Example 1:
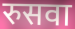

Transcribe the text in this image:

रुसवा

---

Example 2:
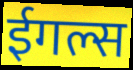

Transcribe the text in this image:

ईगल्स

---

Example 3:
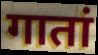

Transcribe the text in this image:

गातां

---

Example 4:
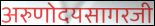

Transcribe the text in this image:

अरुणोदयसागरजी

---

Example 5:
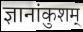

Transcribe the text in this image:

ज्ञानांकुशम्